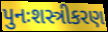
પુનઃશસ્ત્રીકરણ